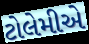
ટોલેમીએ